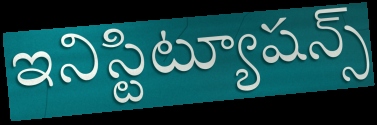
ఇనిస్టిట్యూషన్స్